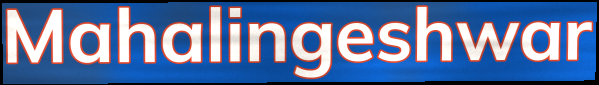
Mahalingeshwar